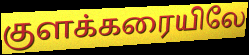
குளக்கரையிலே